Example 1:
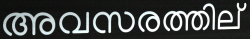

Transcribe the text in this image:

അവസരത്തില്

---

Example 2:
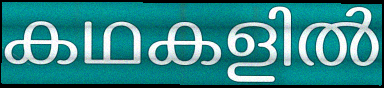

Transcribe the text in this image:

കഥകളിൽ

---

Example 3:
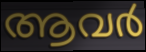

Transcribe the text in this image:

ആവർ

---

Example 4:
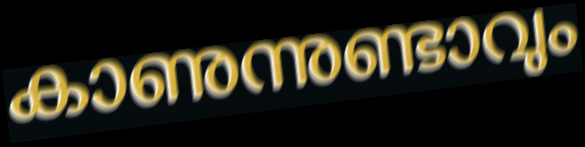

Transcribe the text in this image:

കാണുന്നുണ്ടാവും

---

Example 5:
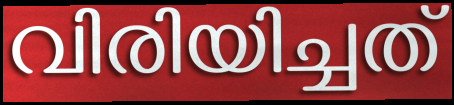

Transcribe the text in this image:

വിരിയിച്ചത്